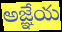
అజ్ఞేయ